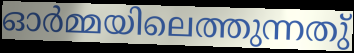
ഓർമ്മയിലെത്തുന്നതു്